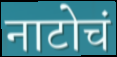
नाटोचं